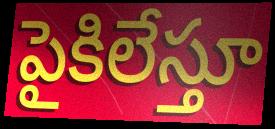
పైకిలేస్తూ